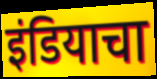
इंडियाचा